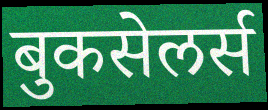
बुकसेलर्स